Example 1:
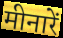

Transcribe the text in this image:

मीनारें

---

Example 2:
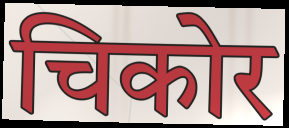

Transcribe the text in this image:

चिकोर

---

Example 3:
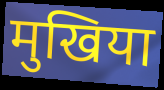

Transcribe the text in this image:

मुखिया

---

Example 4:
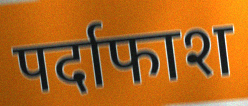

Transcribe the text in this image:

पर्दाफाश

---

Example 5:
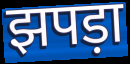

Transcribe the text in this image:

झपड़ा